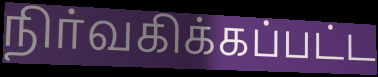
நிர்வகிக்கப்பட்ட